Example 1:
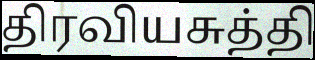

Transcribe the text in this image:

திரவியசுத்தி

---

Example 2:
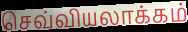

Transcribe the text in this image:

செவ்வியலாக்கம்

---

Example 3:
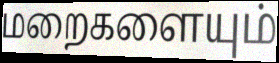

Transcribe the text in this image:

மறைகளையும்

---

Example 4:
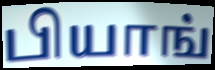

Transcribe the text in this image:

பியாங்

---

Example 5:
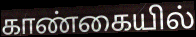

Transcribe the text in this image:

காண்கையில்